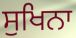
ਸੁਖਿਨਾ